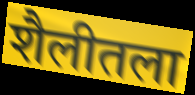
शैलीतला